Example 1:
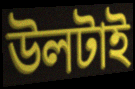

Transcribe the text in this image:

উলটাই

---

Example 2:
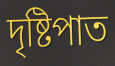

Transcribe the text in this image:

দৃষ্টিপাত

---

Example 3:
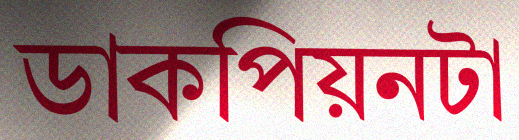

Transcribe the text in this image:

ডাকপিয়নটা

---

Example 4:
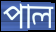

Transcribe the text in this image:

পাল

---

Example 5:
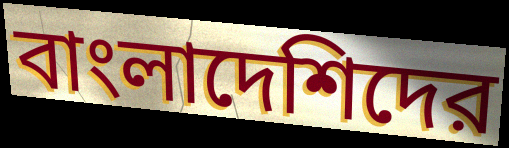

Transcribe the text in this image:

বাংলাদেশিদের